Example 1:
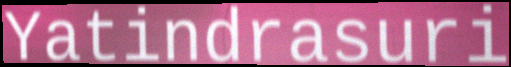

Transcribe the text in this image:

Yatindrasuri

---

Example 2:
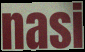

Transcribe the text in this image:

nasi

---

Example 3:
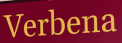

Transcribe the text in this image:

Verbena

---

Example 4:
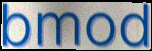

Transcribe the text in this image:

bmod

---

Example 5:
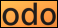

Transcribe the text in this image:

odo